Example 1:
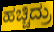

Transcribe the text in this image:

ಹಚ್ಚಿದ್ರು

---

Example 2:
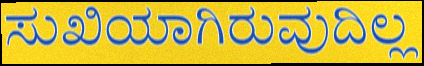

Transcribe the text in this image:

ಸುಖಿಯಾಗಿರುವುದಿಲ್ಲ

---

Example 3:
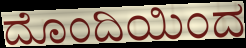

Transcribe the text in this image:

ದೊಂದಿಯಿಂದ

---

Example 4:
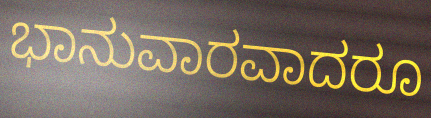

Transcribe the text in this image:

ಭಾನುವಾರವಾದರೂ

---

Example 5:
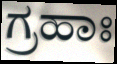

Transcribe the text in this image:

ಗ್ರಹಾಃ